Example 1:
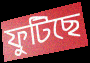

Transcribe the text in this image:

ফুটিছে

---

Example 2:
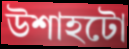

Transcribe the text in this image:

উশাহটো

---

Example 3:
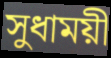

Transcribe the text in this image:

সুধাময়ী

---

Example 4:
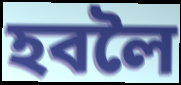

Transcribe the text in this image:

হবলৈ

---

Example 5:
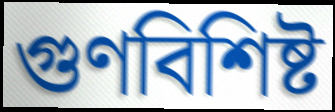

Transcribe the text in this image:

গুণবিশিষ্ট